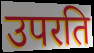
उपरति